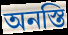
অনস্তি